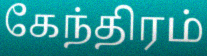
கேந்திரம்